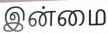
இன்மை